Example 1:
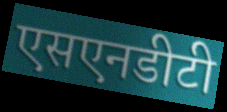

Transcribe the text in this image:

एसएनडीटी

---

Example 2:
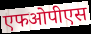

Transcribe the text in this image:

एफओपीएस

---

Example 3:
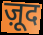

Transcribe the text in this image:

ज़ूद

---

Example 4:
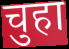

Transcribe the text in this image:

चुहा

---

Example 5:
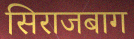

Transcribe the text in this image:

सिराजबाग